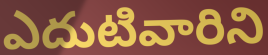
ఎదుటివారిని